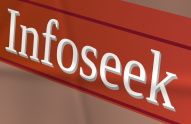
Infoseek